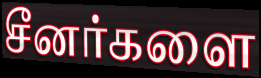
சீனர்களை